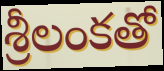
శ్రీలంకతో